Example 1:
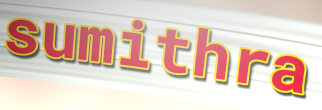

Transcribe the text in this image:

sumithra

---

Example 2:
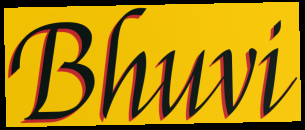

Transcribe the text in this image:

Bhuvi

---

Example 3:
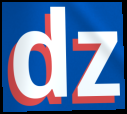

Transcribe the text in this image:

dz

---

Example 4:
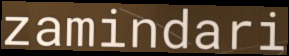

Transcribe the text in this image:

zamindari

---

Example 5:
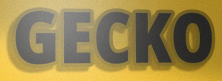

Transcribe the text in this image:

GECKO